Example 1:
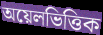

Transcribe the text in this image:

অয়েলভিত্তিক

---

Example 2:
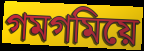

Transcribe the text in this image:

গমগমিয়ে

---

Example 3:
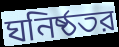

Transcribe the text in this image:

ঘনিষ্ঠতর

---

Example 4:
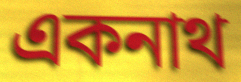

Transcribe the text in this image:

একনাথ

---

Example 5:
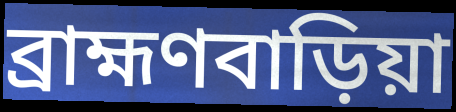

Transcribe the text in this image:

ব্রাহ্মণবাড়িয়া